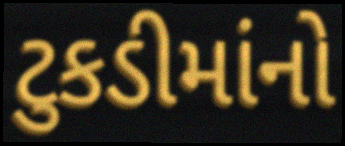
ટુકડીમાંનો